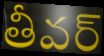
తీవర్